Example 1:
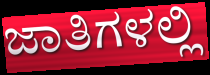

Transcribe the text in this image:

ಜಾತಿಗಳಲ್ಲಿ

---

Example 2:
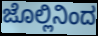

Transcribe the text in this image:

ಜೊಲ್ಲಿನಿಂದ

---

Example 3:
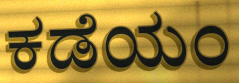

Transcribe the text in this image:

ಕಡೆಯಂ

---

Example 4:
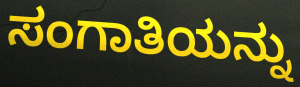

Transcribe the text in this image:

ಸಂಗಾತಿಯನ್ನು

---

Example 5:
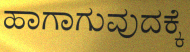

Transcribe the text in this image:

ಹಾಗಾಗುವುದಕ್ಕೆ